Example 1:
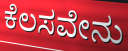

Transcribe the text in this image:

ಕೆಲಸವೇನು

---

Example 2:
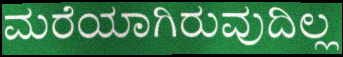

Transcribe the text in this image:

ಮರೆಯಾಗಿರುವುದಿಲ್ಲ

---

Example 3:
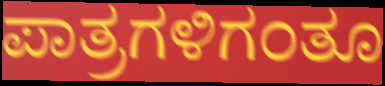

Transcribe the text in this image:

ಪಾತ್ರಗಳಿಗಂತೂ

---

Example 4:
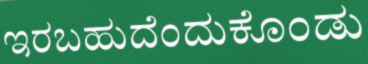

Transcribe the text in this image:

ಇರಬಹುದೆಂದುಕೊಂಡು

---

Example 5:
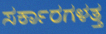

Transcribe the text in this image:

ಸರ್ಕಾರಗಳತ್ತ